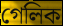
গেলিক